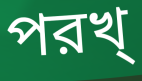
পরখ্